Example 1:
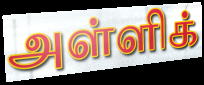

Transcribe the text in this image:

அள்ளிக்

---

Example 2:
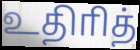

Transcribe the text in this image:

உதிரித்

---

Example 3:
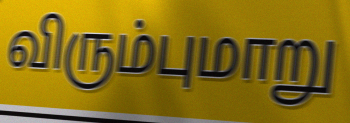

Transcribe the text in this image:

விரும்புமாறு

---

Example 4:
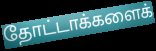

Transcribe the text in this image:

தோட்டாக்களைக்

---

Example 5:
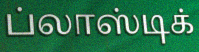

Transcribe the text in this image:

ப்லாஸ்டிக்